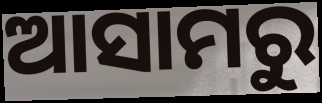
ଆସାମରୁ